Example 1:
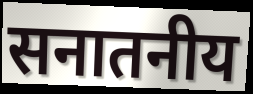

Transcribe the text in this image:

सनातनीय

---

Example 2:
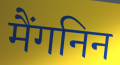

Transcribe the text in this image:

मैंगनिन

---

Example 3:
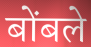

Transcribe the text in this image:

बोंबले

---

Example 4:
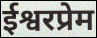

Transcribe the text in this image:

ईश्वरप्रेम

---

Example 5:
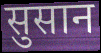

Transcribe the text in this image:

सुसान